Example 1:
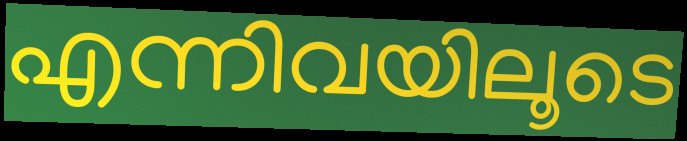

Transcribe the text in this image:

എന്നിവയിലൂടെ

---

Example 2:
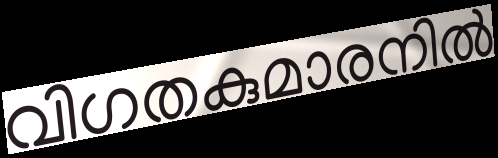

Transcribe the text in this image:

വിഗതകുമാരനിൽ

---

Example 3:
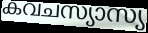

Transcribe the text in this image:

കവചസ്യാസ്യ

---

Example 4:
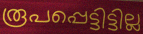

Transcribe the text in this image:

രൂപപ്പെട്ടിട്ടില്ല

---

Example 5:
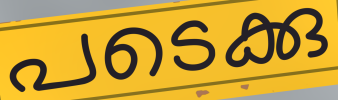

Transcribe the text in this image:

പടെക്കു